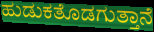
ಹುಡುಕತೊಡಗುತ್ತಾನೆ